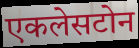
एकलेसटोन